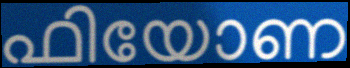
ഫിയോണ